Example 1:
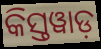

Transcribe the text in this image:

କିସ୍ତୱାଡ଼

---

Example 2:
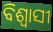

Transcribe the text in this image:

ବିଶ୍ୱାସୀ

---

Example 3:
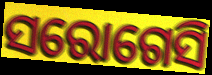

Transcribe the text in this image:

ସରୋଗେସି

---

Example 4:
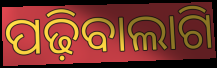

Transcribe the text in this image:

ପଢ଼ିବାଲାଗି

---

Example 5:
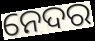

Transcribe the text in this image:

ନେଦର